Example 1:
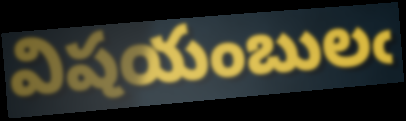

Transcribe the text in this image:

విషయంబులఁ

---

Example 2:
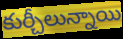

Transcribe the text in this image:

కుర్చీలున్నాయి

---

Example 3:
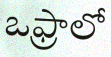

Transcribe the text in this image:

ఒఫ్రాలో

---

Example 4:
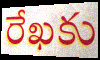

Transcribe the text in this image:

రేఖకు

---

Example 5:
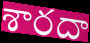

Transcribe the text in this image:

శారదా